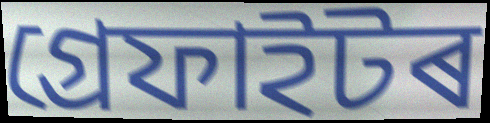
গ্ৰেফাইটৰ